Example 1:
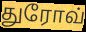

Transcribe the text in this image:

துரோவ்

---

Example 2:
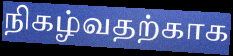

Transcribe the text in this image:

நிகழ்வதற்காக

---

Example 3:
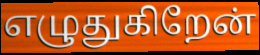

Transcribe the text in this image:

எழுதுகிறேன்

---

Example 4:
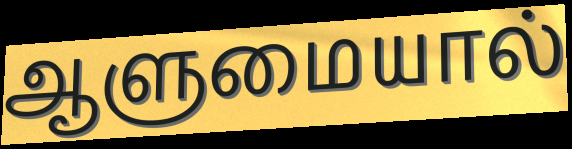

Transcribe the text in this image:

ஆளுமையால்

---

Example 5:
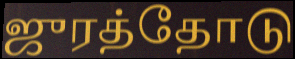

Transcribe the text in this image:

ஜுரத்தோடு